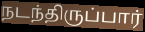
நடந்திருப்பார்